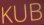
KUB